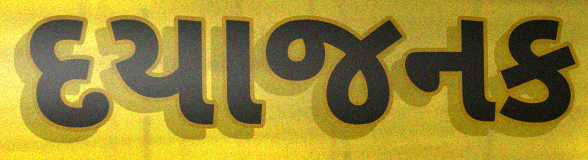
દયાજનક